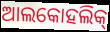
ଆଲକୋହଲିକ୍